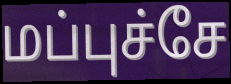
மப்புச்சே